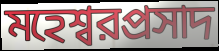
মহেশ্বরপ্রসাদ